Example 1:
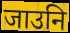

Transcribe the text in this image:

जाउनि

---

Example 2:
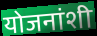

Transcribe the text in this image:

योजनांशी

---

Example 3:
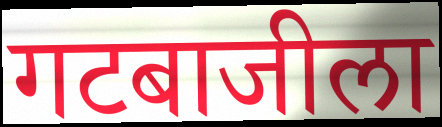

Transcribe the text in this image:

गटबाजीला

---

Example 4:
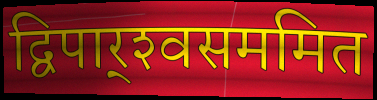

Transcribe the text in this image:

द्विपार्श्वसममित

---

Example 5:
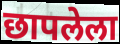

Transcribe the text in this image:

छापलेला